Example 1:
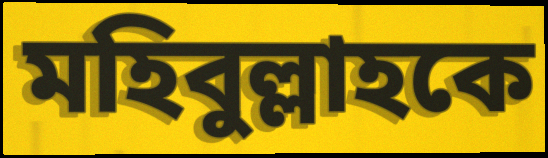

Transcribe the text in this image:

মহিবুল্লাহকে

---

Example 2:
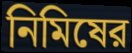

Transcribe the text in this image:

নিমিষের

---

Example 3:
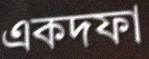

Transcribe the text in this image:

একদফা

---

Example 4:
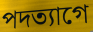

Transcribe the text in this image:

পদত্যাগে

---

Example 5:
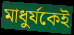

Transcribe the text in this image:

মাধুর্যকেই